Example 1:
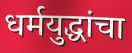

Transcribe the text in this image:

धर्मयुद्धांचा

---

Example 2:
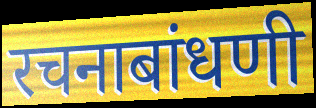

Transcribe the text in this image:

रचनाबांधणी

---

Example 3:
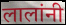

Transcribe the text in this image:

लालांनी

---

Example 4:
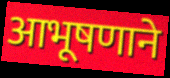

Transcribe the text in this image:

आभूषणाने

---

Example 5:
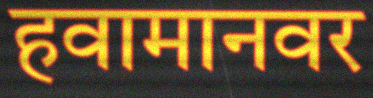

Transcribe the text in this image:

हवामानवर